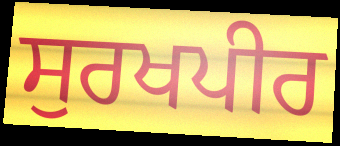
ਸੁਰਖਪੀਰ